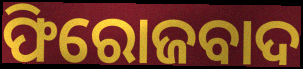
ଫିରୋଜବାଦ